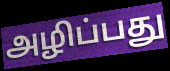
அழிப்பது